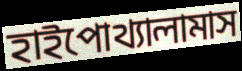
হাইপোথ্যালামাস